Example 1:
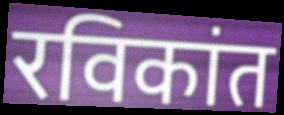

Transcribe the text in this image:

रविकांत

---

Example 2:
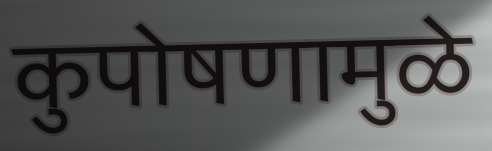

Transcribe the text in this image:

कुपोषणामुळे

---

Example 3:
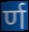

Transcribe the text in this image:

र्ण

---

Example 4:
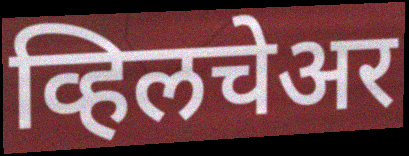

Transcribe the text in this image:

व्हिलचेअर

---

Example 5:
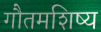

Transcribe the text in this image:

गौतमशिष्य